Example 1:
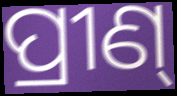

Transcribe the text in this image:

ପ୍ରୀଣ୍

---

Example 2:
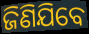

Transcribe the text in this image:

ଜିଣିଯିବେ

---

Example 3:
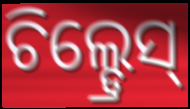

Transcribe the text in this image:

ଚିଲ୍ଡ୍ରେସ୍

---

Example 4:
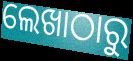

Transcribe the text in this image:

ଲେଖାଠାରୁ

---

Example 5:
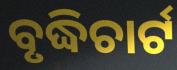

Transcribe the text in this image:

ବୃଦ୍ଧିଚାର୍ଟ